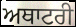
ਅਥਾਟਰੀ